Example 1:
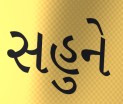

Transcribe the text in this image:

સહુને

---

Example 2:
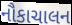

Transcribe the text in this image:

નૌકાચાલન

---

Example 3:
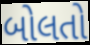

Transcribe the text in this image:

બોલતો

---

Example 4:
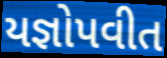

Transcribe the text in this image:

યજ્ઞોપવીત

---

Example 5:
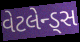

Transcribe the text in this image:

વેટલેન્ડ્સ